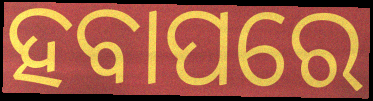
ହବାପରେ